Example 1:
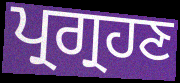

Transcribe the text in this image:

ਪ੍ਰਗ੍ਰਹਣ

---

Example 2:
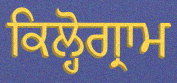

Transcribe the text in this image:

ਕਿਲ੍ਹੋਗ੍ਰਾਮ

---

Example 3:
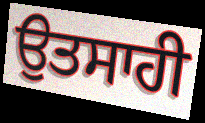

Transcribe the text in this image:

ਉਤਸਾਹੀ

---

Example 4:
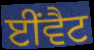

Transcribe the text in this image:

ਈਂਵੈਟ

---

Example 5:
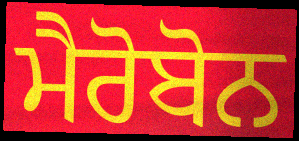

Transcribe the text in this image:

ਮੈਰੋਬੋਨ